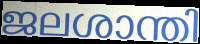
ജലശാന്തി